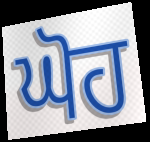
ਘੋਹ